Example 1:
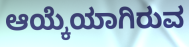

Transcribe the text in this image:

ಆಯ್ಕೆಯಾಗಿರುವ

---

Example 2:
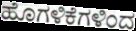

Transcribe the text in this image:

ಹೊಗಳಿಕೆಗಳಿಂದ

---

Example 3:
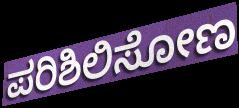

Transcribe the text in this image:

ಪರಿಶಿಲಿಸೋಣ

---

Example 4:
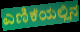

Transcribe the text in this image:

ಎಣಿಕೆಯಲ್ಲಿನ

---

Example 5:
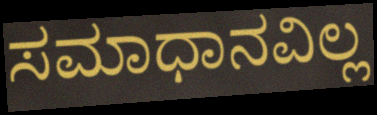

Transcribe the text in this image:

ಸಮಾಧಾನವಿಲ್ಲ